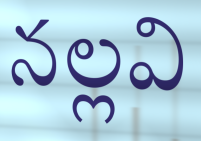
నల్లవి